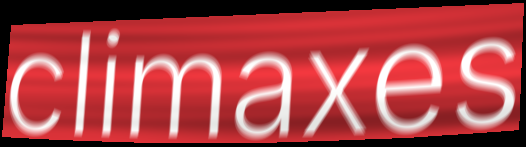
climaxes